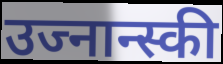
उज्नान्स्की